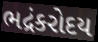
ભદ્રંકરોદય